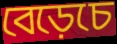
বেড়েচে